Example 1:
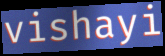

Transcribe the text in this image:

vishayi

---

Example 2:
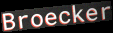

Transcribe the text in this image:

Broecker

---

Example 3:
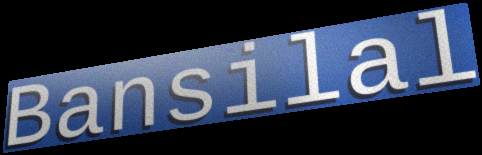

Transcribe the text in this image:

Bansilal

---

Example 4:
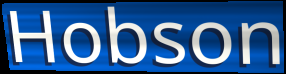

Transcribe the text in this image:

Hobson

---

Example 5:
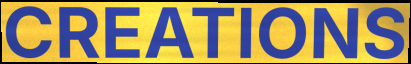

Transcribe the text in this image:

CREATIONS